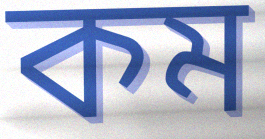
কম